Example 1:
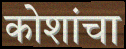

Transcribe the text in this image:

कोशांचा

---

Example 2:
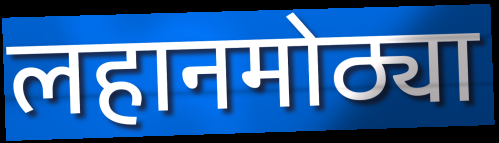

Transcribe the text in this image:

लहानमोठ्या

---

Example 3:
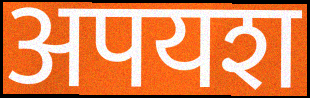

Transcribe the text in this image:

अपयश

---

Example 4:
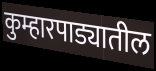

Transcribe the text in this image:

कुम्हारपाड्यातील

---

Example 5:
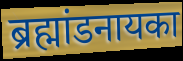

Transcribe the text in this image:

ब्रह्मांडनायका